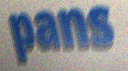
pans